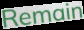
Remain